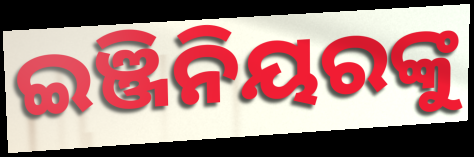
ଇଞ୍ଜିନିୟରଙ୍କୁ